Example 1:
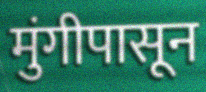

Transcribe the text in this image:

मुंगीपासून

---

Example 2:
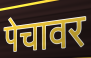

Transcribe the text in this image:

पेचावर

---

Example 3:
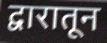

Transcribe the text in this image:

द्वारातून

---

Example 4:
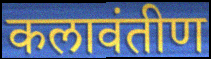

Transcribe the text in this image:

कलावंतीण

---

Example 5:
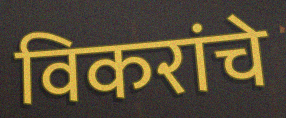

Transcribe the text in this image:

विकरांचे